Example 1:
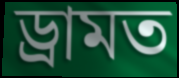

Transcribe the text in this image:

ড্ৰামত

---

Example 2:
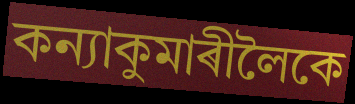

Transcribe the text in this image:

কন্যাকুমাৰীলৈকে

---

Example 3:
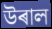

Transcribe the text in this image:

উৰাল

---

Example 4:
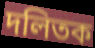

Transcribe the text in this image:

দলিতক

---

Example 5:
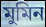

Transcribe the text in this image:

মুমিন